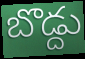
బొడ్దు